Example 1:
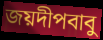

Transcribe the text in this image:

জয়দীপবাবু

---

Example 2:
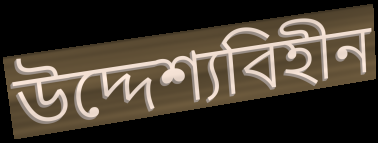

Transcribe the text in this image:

উদ্দেশ্যবিহীন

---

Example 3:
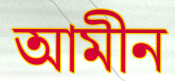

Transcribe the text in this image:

আমীন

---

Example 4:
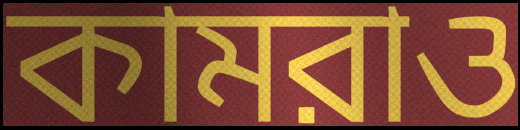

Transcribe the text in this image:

কামরাও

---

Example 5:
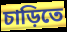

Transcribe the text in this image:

চাড়িতে